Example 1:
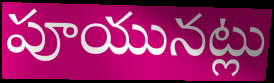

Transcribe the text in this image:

పూయునట్లు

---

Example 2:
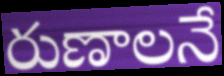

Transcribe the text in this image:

రుణాలనే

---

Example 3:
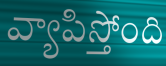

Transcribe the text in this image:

వ్యాపిస్తోంది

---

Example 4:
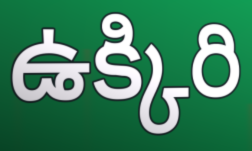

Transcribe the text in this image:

ఉక్కిరి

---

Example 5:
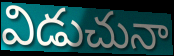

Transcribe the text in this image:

విడుచునా